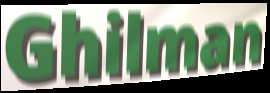
Ghilman